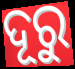
ଦୂରୁ